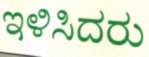
ಇಳಿಸಿದರು